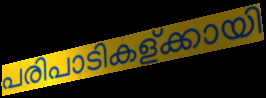
പരിപാടികള്ക്കായി